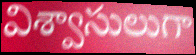
విశ్వాసులుగా